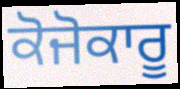
ਕੋਜੋਕਾਰੂ